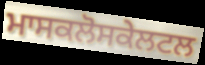
ਮਾਸਕਲੋਸਕੇਲਟਲ